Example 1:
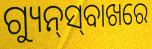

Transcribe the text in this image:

ଗ୍ୟୁନ୍‍ସ୍‍ବାଖରେ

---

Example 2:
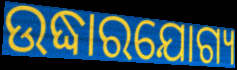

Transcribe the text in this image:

ଉଦ୍ଧାରଯୋଗ୍ୟ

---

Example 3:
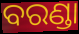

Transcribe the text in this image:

ବରଣ୍ଡା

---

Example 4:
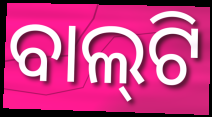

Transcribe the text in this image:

ବାଲ୍‍ଟି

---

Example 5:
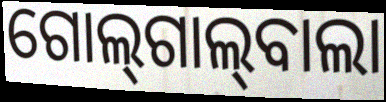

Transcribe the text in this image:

ଗୋଲ୍‍ଗାଲ୍‍ବାଲା